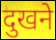
दुखने